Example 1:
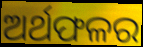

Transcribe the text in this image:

ଅର୍ଥଫଳର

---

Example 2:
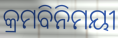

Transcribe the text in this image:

କ୍ରମବିନିମୟୀ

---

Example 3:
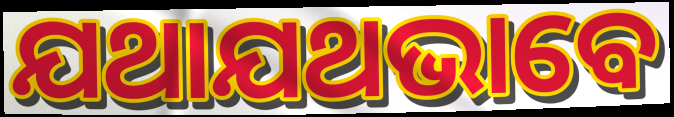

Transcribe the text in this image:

ଯଥାଯଥଭାବେ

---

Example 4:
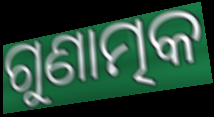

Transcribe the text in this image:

ଗୁଣାତ୍ମକ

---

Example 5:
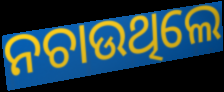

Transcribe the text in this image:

ନଚାଉଥିଲେ